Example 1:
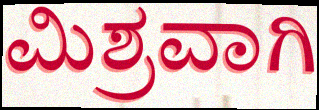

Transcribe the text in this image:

ಮಿಶ್ರವಾಗಿ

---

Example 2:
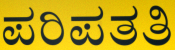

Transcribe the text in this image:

ಪರಿಪತತಿ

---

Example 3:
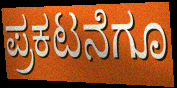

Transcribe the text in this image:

ಪ್ರಕಟನೆಗೂ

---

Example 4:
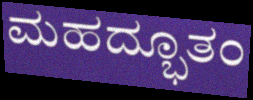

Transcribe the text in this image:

ಮಹದ್ಭೂತಂ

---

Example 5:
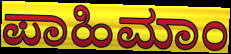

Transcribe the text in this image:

ಪಾಹಿಮಾಂ